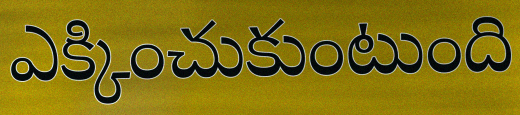
ఎక్కించుకుంటుంది